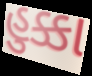
હુક્કા